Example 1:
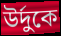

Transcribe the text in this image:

উর্দুকে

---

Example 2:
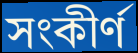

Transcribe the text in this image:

সংকীর্ণ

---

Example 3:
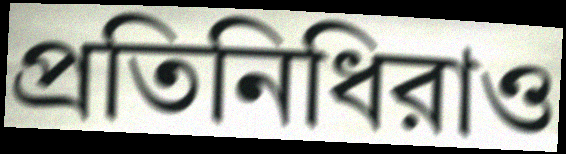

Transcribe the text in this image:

প্রতিনিধিরাও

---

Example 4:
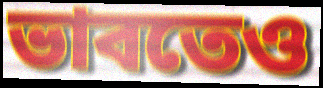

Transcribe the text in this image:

ভাবতেও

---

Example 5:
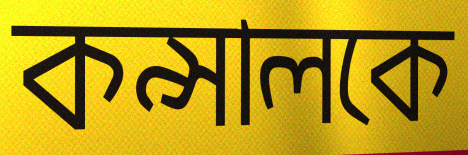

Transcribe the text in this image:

কন্সালকে